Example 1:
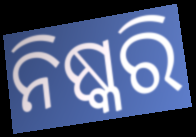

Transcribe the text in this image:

ନିଷ୍କରି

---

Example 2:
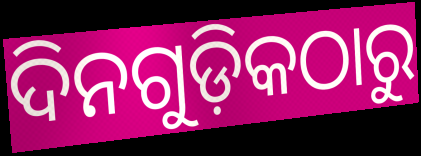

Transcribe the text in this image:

ଦିନଗୁଡ଼ିକଠାରୁ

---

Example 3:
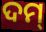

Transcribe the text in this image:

ଦମ୍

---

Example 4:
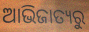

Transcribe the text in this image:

ଆଭିଜାତ୍ୟରୁ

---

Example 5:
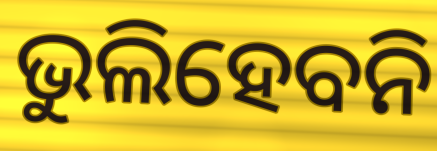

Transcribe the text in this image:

ଭୁଲିହେବନି